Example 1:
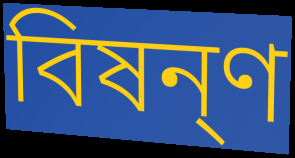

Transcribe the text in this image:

বিষন্ণ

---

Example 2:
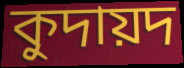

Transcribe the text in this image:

কুদায়দ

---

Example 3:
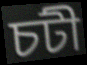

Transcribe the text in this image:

চটী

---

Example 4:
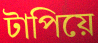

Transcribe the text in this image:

টাপিয়ে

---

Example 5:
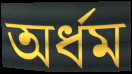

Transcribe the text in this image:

অর্ধম